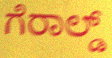
ಗೆರಾಲ್ಡ್